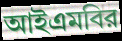
আইএমবির